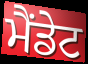
ਮੈਂਡੇਟ